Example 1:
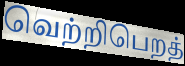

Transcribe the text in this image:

வெற்றிபெறத்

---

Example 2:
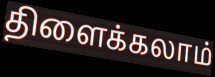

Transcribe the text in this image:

திளைக்கலாம்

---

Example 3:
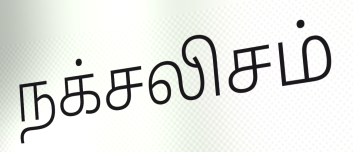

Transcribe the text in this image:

நக்சலிசம்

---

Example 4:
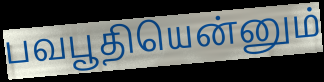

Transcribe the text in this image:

பவபூதியென்னும்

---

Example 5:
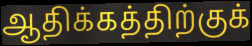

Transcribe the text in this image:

ஆதிக்கத்திற்குக்